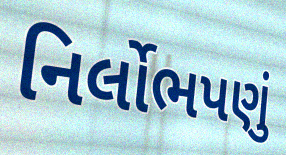
નિર્લોભપણું